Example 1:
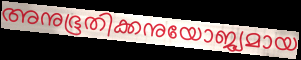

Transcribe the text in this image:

അനുഭൂതിക്കനുയോജ്യമായ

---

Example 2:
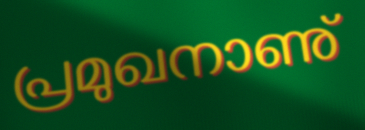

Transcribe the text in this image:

പ്രമുഖനാണു്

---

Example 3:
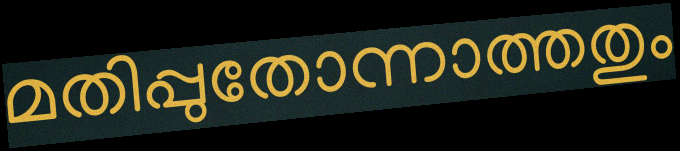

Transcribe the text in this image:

മതിപ്പുതോന്നാത്തതും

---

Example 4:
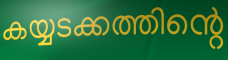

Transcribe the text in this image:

കയ്യടക്കത്തിന്റെ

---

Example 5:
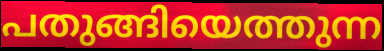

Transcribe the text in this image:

പതുങ്ങിയെത്തുന്ന